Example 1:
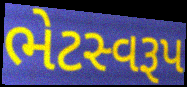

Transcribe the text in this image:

ભેટસ્વરૂપ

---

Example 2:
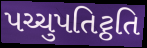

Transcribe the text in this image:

પચ્ચુપતિટ્ઠતિ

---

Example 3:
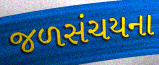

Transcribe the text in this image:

જળસંચયના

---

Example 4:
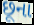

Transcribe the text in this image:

છૂના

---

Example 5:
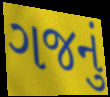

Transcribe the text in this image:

ગજનું